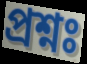
প্রশ্নঃ